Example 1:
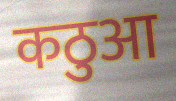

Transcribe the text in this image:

कठुआ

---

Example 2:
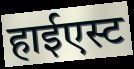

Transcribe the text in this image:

हाईएस्ट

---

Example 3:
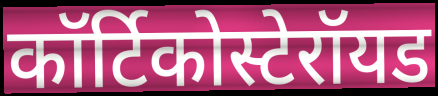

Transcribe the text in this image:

कॉर्टिकोस्टेरॉयड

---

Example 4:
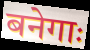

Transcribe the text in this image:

बनेगाः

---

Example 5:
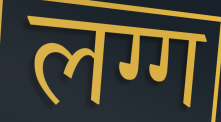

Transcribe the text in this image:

लग्ग